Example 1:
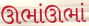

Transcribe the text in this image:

ઊભાંઊભાં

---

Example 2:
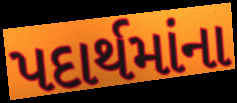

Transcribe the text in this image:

પદાર્થમાંના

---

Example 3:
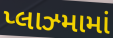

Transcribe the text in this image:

પ્લાઝ્મામાં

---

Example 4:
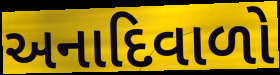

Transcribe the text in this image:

અનાદિવાળો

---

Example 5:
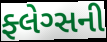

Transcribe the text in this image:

ફ્લેગ્સની